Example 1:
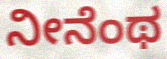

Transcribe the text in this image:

ನೀನೆಂಥ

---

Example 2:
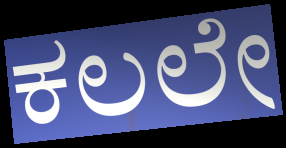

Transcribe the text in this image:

ಕಲಲೇ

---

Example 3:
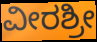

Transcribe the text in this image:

ವೀರಶ್ರೀ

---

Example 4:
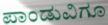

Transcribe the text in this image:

ಪಾಂಡುವಿಗೂ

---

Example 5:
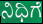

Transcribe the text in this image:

ನಿಧಿಗೆ